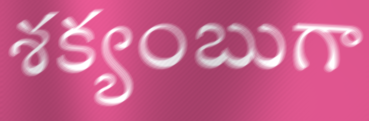
శక్యంబుగా